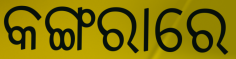
କଙ୍ଗରାରେ